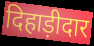
दिहाड़ीदार